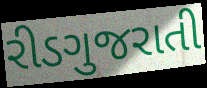
રીડગુજરાતી